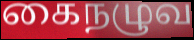
கைநழுவ